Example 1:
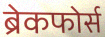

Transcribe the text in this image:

ब्रेकफोर्स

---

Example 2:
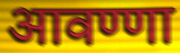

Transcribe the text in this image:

आवण्णा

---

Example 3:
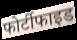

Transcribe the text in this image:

फोर्टीफाइड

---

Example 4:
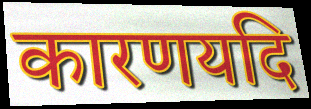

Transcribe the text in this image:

कारणयदि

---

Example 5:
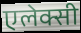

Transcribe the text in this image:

एलेक्सी